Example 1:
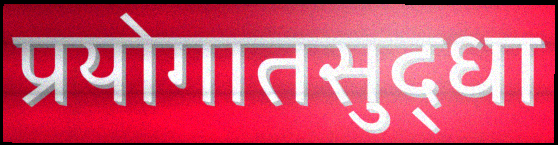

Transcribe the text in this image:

प्रयोगातसुद्धा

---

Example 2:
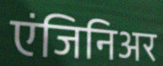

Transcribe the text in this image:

एंजिनिअर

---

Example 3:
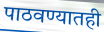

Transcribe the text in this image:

पाठवण्यातही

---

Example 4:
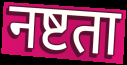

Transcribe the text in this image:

नष्टता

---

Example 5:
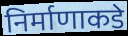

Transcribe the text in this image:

निर्माणाकडे